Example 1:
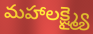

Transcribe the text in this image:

మహాలక్ష్మ్యై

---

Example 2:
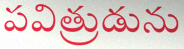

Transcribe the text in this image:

పవిత్రుడును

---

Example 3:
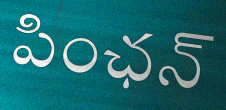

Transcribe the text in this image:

పింఛన్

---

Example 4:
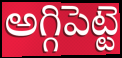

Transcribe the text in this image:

అగ్గిపెట్టె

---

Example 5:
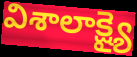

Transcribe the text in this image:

విశాలాక్ష్యై